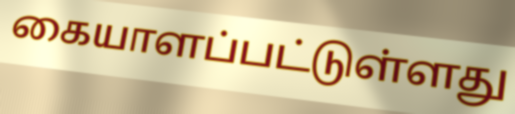
கையாளப்பட்டுள்ளது